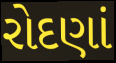
રોદણાં